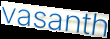
vasanth